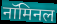
नॉमिनल